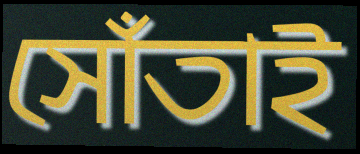
সোঁতাই